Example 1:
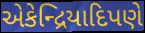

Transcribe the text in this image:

એકેન્દ્રિયાદિપણે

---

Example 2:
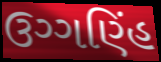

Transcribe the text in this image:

ઉગ્ગણ્હિં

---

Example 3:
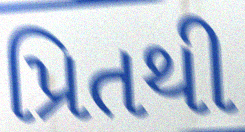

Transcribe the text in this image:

પ્રિતથી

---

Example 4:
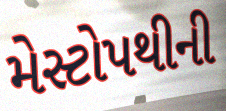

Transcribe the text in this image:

મેસ્ટોપથીની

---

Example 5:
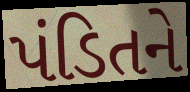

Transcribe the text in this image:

પંડિતને